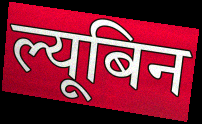
ल्यूबिन